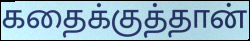
கதைக்குத்தான்